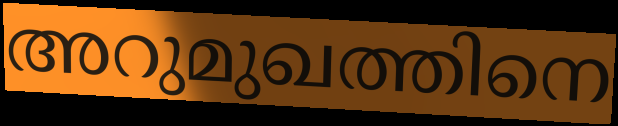
അറുമുഖത്തിനെ